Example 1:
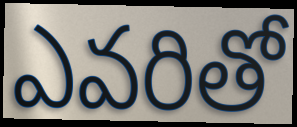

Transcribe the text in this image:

ఎవరితో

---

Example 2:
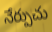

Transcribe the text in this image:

నేర్పుచు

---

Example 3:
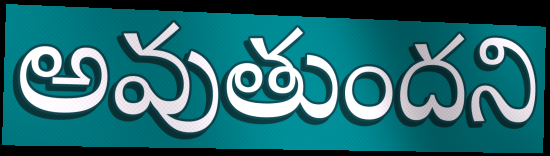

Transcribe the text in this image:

అవుతుందని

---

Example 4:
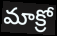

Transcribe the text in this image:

మాక్రో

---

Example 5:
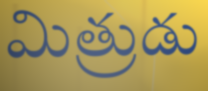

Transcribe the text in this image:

మిత్రుడు